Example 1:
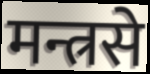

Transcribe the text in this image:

मन्त्रसे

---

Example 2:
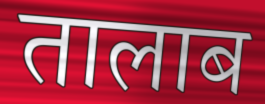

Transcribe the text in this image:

तालाब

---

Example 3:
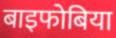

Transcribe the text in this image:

बाइफोबिया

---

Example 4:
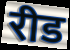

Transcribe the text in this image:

रीड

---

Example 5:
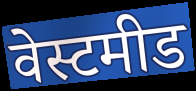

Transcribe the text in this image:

वेस्टमीड